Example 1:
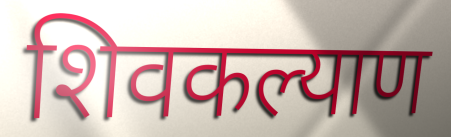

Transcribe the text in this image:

शिवकल्याण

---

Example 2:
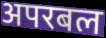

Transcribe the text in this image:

अपरबल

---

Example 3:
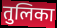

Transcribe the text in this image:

तुलिका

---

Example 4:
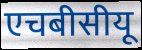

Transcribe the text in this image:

एचबीसीयू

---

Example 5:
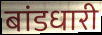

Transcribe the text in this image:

बांडधारी